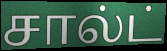
சால்ட்